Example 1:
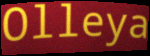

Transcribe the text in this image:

Olleya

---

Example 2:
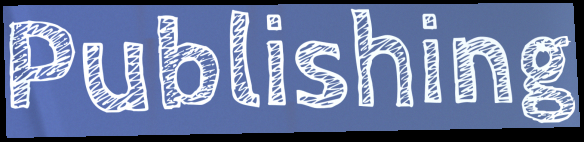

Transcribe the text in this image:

Publishing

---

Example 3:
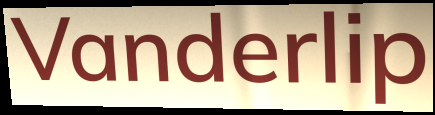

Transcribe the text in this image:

Vanderlip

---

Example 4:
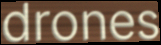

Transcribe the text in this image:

drones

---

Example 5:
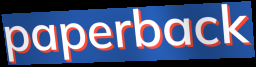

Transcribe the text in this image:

paperback